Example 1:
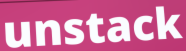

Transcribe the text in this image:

unstack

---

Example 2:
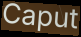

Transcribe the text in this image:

Caput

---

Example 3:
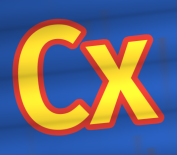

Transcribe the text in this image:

Cx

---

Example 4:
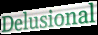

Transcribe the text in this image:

Delusional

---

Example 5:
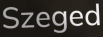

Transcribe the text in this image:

Szeged